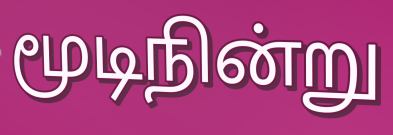
மூடிநின்று